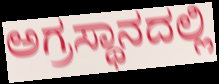
ಅಗ್ರಸ್ಥಾನದಲ್ಲಿ